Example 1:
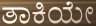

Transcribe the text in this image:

ತಾಕಿಯೇ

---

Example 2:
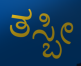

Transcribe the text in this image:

ತಸ್ಬೀ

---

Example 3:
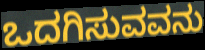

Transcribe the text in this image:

ಒದಗಿಸುವವನು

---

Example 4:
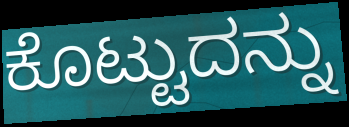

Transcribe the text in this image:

ಕೊಟ್ಟುದನ್ನು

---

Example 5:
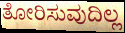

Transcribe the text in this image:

ತೋರಿಸುವುದಿಲ್ಲ